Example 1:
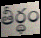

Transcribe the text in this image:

తీర్థం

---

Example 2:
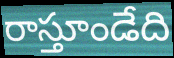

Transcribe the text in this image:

రాస్తూండేది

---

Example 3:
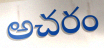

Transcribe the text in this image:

అచరం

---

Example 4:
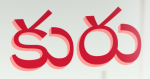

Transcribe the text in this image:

కురు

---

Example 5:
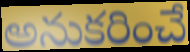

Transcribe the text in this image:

అనుకరించే